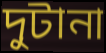
দুটানা